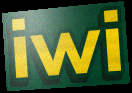
iwi